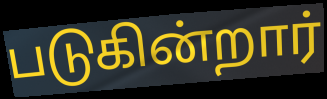
படுகின்றார்